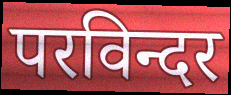
परविन्दर